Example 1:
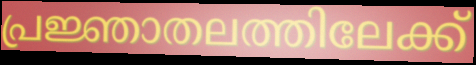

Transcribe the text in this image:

പ്രജ്ഞാതലത്തിലേക്ക്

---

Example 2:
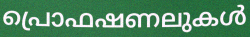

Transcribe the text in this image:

പ്രൊഫഷണലുകൾ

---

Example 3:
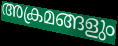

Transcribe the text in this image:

അക്രമങ്ങളും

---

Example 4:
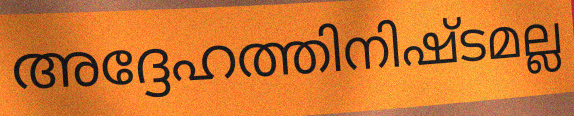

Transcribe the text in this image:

അദ്ദേഹത്തിനിഷ്ടമല്ല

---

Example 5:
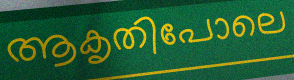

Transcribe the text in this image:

ആകൃതിപോലെ